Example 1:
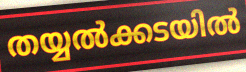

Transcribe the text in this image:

തയ്യൽക്കടയിൽ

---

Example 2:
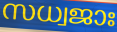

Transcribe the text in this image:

സധ്വജാഃ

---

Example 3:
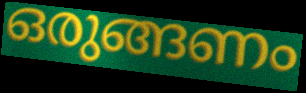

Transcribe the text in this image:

ഒരുങ്ങണം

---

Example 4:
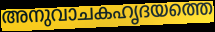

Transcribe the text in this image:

അനുവാചകഹൃദയത്തെ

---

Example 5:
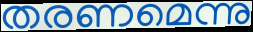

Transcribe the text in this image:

തരണമെന്നു